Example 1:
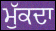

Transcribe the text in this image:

ਮੁੱਕਦਾ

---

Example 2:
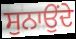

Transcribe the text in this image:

ਸੁਨਾਉਂਦੇ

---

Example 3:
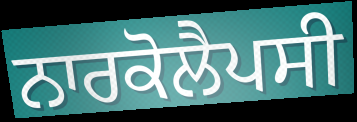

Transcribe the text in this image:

ਨਾਰਕੋਲੈਪਸੀ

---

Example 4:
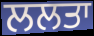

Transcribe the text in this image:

ਲਲਤਾ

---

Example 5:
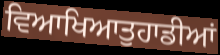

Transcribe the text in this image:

ਵਿਆਖਿਆਤੁਹਾਡੀਆਂ